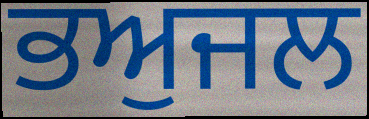
ਭਅੁਜਲ